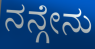
ನನ್ಗೇನು